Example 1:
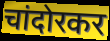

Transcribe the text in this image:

चांदोरकर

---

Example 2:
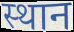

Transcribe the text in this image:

स्थान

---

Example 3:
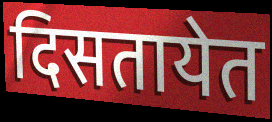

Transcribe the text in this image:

दिसतायेत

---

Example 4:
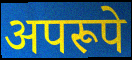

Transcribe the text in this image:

अपरूपे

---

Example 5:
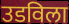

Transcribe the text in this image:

उडविला